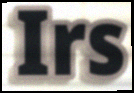
Irs